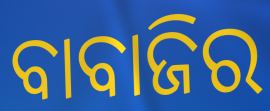
ବାବାଜିର